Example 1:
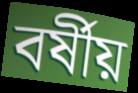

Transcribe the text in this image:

বর্ষীয়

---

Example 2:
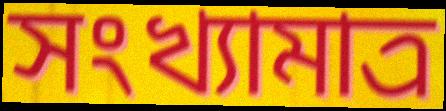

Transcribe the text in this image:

সংখ্যামাত্র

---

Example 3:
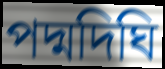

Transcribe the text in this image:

পদ্মদিঘি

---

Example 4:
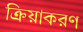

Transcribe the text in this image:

ক্রিয়াকরণ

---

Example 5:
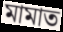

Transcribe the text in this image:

মামাত